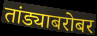
तांड्याबरोबर